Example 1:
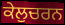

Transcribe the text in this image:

ਕੇਲੁਚਰਨ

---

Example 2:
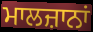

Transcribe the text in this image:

ਮਾਲਜ਼ਾਨਾਂ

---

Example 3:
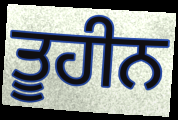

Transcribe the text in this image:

ਤੂਹੀਨ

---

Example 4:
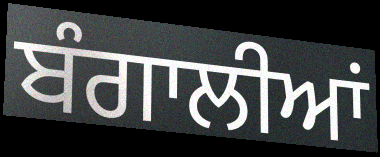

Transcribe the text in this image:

ਬੰਗਾਲੀਆਂ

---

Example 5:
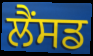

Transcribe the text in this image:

ਲੈਂਸਡ